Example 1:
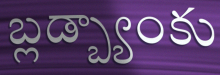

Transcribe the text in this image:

బ్లడ్బ్యాంకు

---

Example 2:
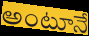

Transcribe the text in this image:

అంటూనే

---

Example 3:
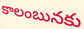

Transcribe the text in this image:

కాలంబునకు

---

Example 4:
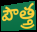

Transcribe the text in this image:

పౌత్త్ర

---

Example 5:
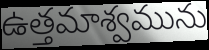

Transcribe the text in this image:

ఉత్తమాశ్వమును